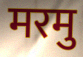
मरमु